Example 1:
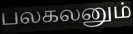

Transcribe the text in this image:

பலகலனும்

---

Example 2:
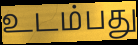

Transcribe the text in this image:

உடம்பது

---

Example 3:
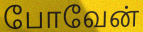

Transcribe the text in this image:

போவேன்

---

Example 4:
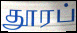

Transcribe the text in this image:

தூரப்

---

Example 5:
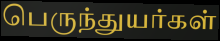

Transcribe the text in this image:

பெருந்துயர்கள்